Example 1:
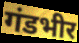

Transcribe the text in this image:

गंडभीर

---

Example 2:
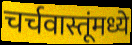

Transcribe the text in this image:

चर्चवास्तूंमध्ये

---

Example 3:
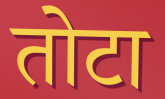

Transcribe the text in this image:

तोटा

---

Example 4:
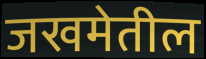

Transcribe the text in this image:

जखमेतील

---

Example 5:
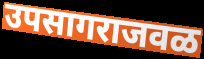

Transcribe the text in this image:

उपसागराजवळ